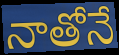
నాతోనే